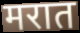
मरात